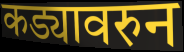
कड्यावरुन